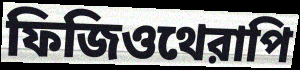
ফিজিওথেরাপি